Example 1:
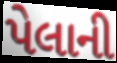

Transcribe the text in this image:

પેલાની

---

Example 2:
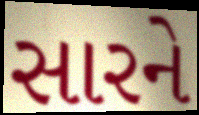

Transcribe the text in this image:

સારને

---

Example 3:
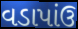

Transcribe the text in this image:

વડાપાંઉ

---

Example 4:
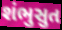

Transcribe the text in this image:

શંભુસુત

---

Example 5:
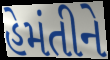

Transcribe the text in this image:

હેમંતીને